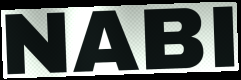
NABI